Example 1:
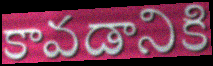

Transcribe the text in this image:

కావడానికి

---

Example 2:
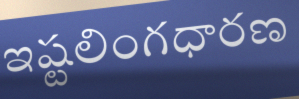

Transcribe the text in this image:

ఇష్టలింగధారణ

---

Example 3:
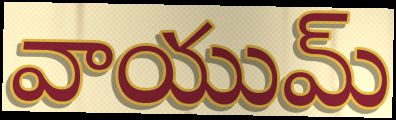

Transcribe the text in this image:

వాయుమ్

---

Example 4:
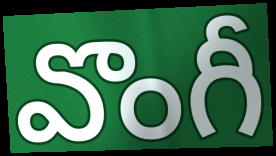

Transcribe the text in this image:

వొంగీ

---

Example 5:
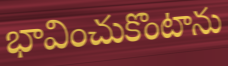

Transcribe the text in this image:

భావించుకొంటాను